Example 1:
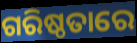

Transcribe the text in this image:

ଗରିଷ୍ଠତାରେ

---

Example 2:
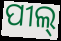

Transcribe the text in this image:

ପୀଲ୍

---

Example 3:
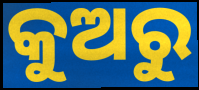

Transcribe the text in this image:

କୁଅରୁ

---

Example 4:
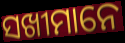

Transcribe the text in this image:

ସଖୀମାନେ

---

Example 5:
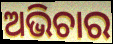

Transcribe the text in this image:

ଅଭିଚାର